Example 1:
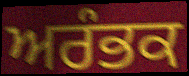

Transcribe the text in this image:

ਅਰੰਭਕ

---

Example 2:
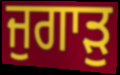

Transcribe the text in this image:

ਜੁਗਾੜੁ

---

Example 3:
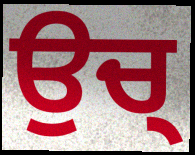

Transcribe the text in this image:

ਉਚ੍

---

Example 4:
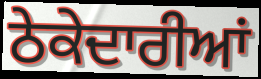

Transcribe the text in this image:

ਠੇਕੇਦਾਰੀਆਂ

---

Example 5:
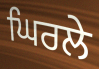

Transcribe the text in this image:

ਘਿਰਲੇ